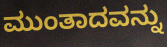
ಮುಂತಾದವನ್ನು